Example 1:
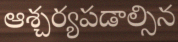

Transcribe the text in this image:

ఆశ్చర్యపడాల్సిన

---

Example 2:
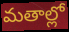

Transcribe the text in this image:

మతాల్లో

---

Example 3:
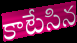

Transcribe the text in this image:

కాటేసిన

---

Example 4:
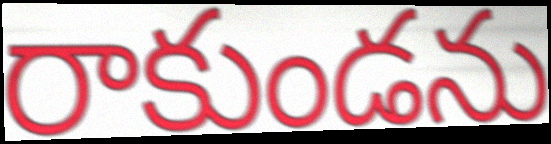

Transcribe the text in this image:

రాకుండను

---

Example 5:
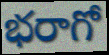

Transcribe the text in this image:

భరాగో